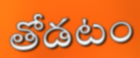
తోడటం